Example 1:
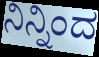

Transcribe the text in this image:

ನಿನ್ನಿಂದ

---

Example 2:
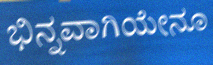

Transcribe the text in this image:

ಭಿನ್ನವಾಗಿಯೇನೂ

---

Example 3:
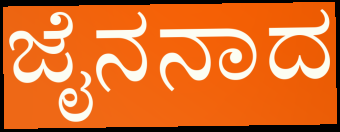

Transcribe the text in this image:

ಜೈನನಾದ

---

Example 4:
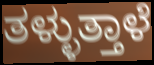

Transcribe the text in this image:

ತಳ್ಳುತ್ತಾಳೆ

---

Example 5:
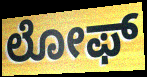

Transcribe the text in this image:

ಲೋಫ್